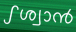
ഽശ്വാൻ